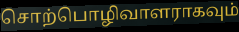
சொற்பொழிவாளராகவும்